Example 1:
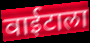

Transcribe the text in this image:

वाईटाला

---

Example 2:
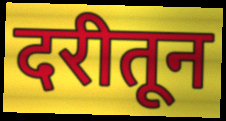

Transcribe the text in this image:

दरीतून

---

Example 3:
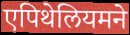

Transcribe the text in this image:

एपिथेलियमने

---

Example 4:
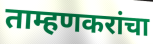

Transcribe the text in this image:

ताम्हणकरांचा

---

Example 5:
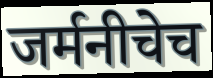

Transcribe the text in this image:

जर्मनीचेच